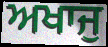
ਅਖਾਜੁ